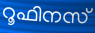
റൂഫിനസ്